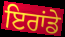
ਇਰਾਂਡੇ